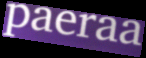
paeraa